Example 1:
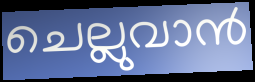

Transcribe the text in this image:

ചെല്ലുവാൻ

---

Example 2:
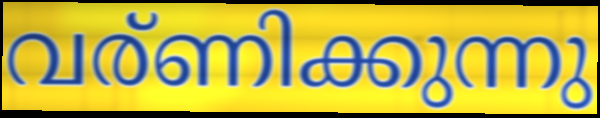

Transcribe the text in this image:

വര്ണിക്കുന്നു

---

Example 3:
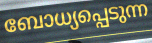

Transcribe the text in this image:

ബോധ്യപ്പെടുന്ന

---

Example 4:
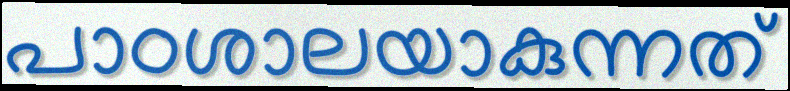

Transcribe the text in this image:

പാഠശാലയാകുന്നത്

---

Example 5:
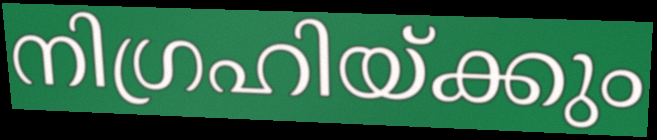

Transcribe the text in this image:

നിഗ്രഹിയ്ക്കും